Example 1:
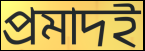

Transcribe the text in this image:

প্রমাদই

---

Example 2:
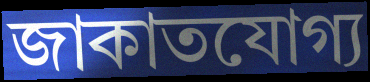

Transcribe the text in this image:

জাকাতযোগ্য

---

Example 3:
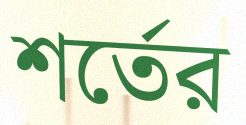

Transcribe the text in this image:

শর্তের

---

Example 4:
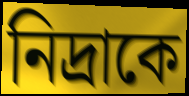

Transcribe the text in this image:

নিদ্রাকে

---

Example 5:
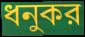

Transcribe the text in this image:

ধনুকর